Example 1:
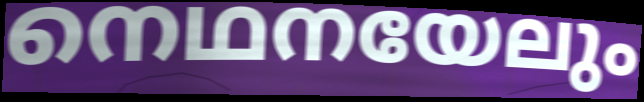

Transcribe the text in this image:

നെഥനയേലും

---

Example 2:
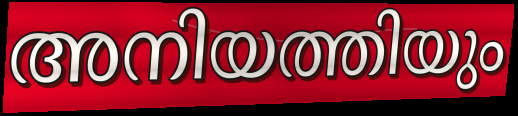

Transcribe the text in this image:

അനിയത്തിയും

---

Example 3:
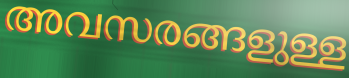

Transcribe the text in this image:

അവസരങ്ങളുള്ള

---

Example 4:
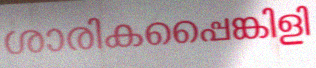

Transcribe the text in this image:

ശാരികപ്പൈങ്കിളി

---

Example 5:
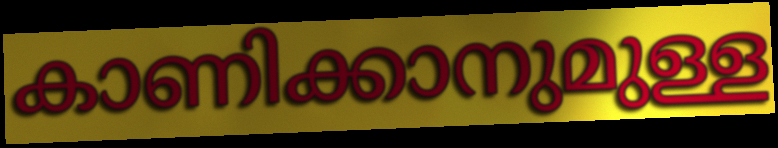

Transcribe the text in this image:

കാണിക്കാനുമുള്ള